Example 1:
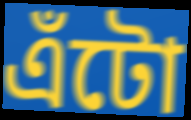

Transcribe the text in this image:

এঁটো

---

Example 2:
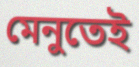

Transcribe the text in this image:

মেনুতেই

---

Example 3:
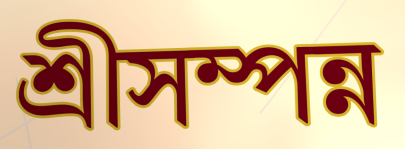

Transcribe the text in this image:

শ্রীসম্পন্ন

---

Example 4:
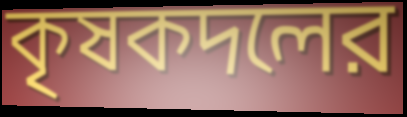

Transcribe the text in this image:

কৃষকদলের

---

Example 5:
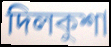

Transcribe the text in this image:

দিলকুশা